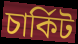
চাৰ্কিট